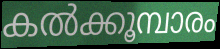
കൽക്കൂമ്പാരം